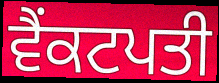
ਵੈਂਕਟਪਤੀ